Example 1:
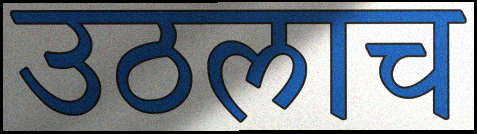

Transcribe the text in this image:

उठलाच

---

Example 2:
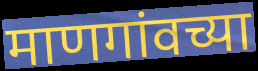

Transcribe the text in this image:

माणगांवच्या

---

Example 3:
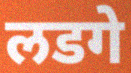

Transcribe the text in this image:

लडगे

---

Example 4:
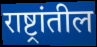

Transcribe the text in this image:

राष्ट्रांतील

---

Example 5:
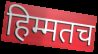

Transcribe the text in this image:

हिम्मतच